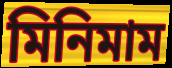
মিনিমাম